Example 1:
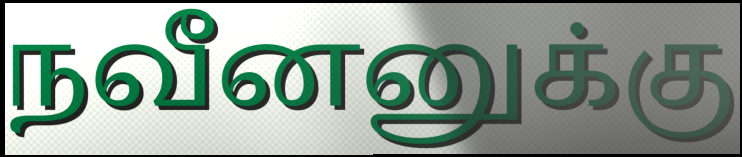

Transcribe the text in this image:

நவீனனுக்கு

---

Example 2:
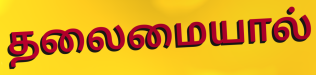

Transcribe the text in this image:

தலைமையால்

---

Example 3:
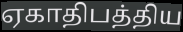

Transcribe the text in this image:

ஏகாதிபத்திய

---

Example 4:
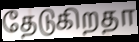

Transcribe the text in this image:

தேடுகிறதா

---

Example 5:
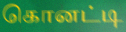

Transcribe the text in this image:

கொனட்டி